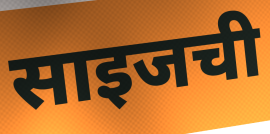
साइजची